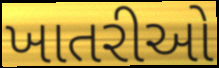
ખાતરીઓ